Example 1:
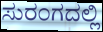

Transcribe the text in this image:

ಸುರಂಗದಲ್ಲಿ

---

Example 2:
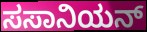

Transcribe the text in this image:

ಸಸಾನಿಯನ್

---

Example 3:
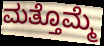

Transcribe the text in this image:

ಮತ್ತೊಮ್ಮೆ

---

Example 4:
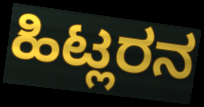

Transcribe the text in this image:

ಹಿಟ್ಲರನ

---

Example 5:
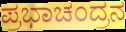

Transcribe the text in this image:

ಪ್ರಭಾಚಂದ್ರನ